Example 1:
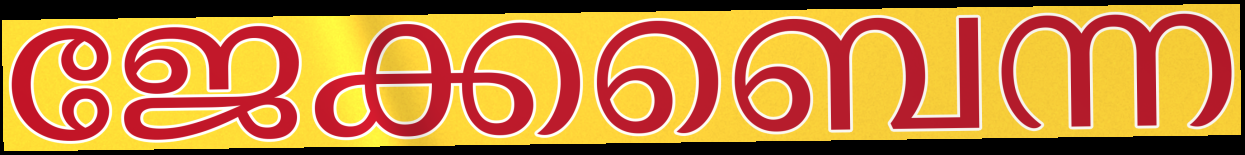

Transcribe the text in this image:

ജേക്കബെന്ന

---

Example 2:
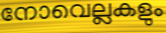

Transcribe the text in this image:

നോവെല്ലകളും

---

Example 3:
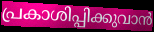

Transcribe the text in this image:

പ്രകാശിപ്പിക്കുവാൻ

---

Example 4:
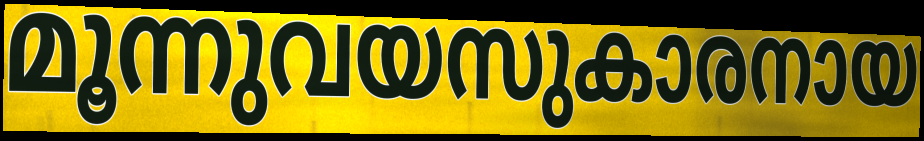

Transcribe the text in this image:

മൂന്നുവയസുകാരനായ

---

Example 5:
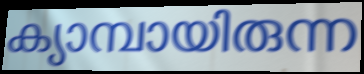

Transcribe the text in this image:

ക്യാമ്പായിരുന്ന